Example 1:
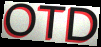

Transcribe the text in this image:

OTD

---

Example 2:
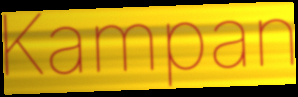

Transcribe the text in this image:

Kampan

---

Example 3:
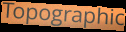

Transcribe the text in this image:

Topographic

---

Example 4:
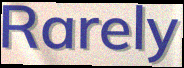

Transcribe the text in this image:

Rarely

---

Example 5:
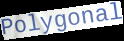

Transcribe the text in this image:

Polygonal